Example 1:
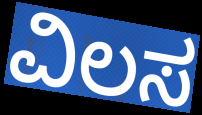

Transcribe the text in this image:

ವಿಲಸ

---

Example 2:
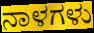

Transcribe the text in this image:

ನಾಳಗಳು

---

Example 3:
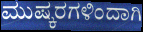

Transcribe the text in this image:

ಮುಷ್ಕರಗಳಿಂದಾಗಿ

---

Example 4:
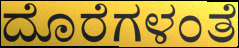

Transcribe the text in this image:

ದೊರೆಗಳಂತೆ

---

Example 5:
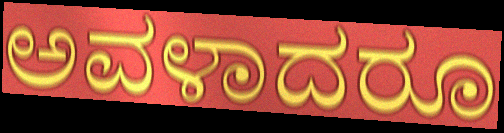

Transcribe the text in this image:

ಅವಳಾದರೂ